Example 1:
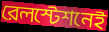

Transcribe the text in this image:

রেলস্টেশনেই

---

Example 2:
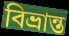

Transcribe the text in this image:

বিভ্রান্ত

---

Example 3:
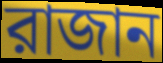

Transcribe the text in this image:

রাজান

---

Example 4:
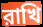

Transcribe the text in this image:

রাখি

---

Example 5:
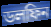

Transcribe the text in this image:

ডলফিন